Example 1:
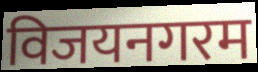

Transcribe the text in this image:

विजयनगरम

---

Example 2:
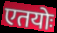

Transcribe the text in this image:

एतयोः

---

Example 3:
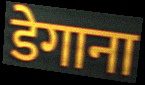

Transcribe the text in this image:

डेगाना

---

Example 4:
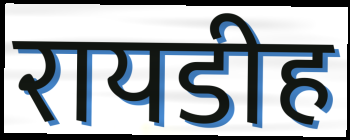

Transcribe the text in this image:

रायडीह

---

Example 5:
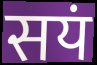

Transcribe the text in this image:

सयं